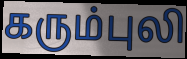
கரும்புலி